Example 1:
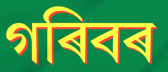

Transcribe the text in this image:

গৰিবৰ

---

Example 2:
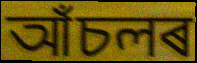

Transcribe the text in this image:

আঁচলৰ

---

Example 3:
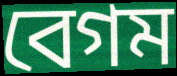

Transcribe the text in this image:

বেগম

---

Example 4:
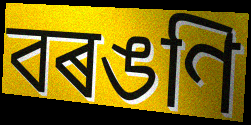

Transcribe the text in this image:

বৰঙণি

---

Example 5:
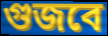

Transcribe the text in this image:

গুজবে